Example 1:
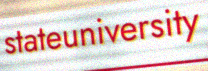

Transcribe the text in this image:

stateuniversity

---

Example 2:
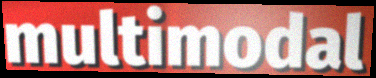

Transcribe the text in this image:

multimodal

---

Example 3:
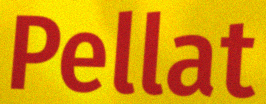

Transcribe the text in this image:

Pellat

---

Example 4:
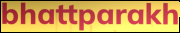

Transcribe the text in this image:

bhattparakh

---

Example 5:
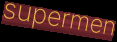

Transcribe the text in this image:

supermen